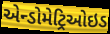
એન્ડોમેટ્રિઓઇડ